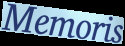
Memoris